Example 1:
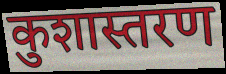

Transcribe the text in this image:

कुशास्तरण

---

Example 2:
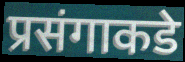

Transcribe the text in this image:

प्रसंगाकडे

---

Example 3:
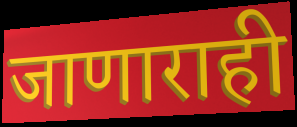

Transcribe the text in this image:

जाणाराही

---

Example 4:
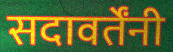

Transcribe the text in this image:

सदावर्तेंनी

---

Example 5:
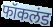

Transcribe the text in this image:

फॉकलंड